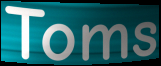
Toms